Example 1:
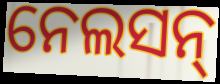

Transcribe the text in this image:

ନେଲସନ୍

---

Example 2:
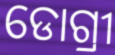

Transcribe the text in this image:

ଡୋଗ୍ରୀ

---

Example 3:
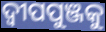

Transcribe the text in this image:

ଦ୍ଵୀପପୁଞ୍ଜକୁ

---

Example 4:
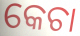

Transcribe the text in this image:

କେଚା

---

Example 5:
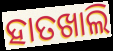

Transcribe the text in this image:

ହାତଖାଲି